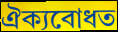
ঐক্যবোধত